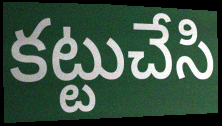
కట్టుచేసి